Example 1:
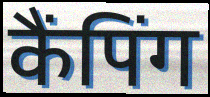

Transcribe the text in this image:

कैंपिंग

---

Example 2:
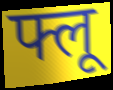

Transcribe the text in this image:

फ्लू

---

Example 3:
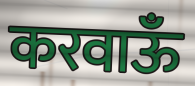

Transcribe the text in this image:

करवाऊँ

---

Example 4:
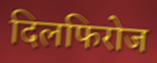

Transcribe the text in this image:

दिलफिरोज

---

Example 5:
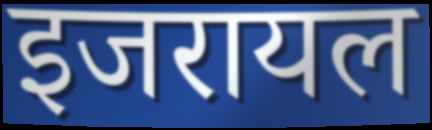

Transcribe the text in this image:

इजरायल